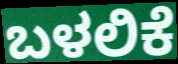
ಬಳಲಿಕೆ